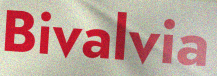
Bivalvia